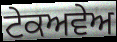
ਟੇਕਅਵੇਅ